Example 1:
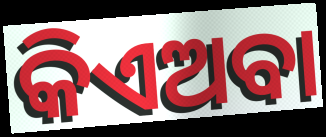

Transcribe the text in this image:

କିଏଅବା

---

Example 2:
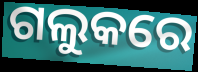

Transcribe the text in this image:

ଗଲୁକରେ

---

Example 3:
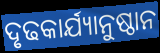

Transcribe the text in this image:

ଦୃଢକାର୍ଯ୍ୟାନୁଷ୍ଠାନ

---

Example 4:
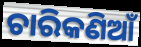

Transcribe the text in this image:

ଚାରିକଣିଆଁ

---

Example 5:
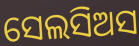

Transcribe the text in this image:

ସେଲସିଅସ